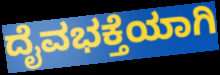
ದೈವಭಕ್ತೆಯಾಗಿ